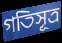
গতিসূত্র